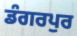
ਡੰਗਰਪੁਰ